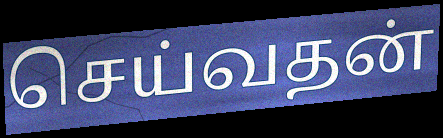
செய்வதன்